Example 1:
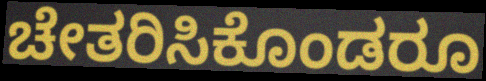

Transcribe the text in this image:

ಚೇತರಿಸಿಕೊಂಡರೂ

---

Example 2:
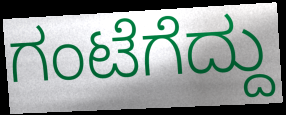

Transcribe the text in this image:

ಗಂಟೆಗೆದ್ದು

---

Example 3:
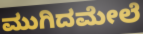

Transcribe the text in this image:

ಮುಗಿದಮೇಲೆ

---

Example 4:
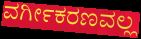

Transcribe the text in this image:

ವರ್ಗೀಕರಣವಲ್ಲ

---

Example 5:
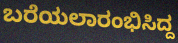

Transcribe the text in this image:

ಬರೆಯಲಾರಂಭಿಸಿದ್ದ